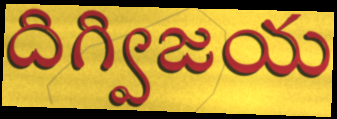
దిగ్విజయ